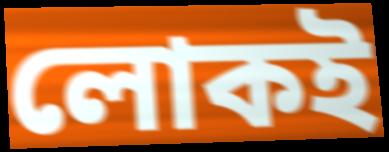
লোকই